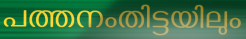
പത്തനംതിട്ടയിലും